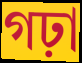
গঢ়া